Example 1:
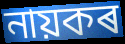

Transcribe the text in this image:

নায়কৰ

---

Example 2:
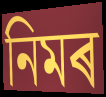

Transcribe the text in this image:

নিমৰ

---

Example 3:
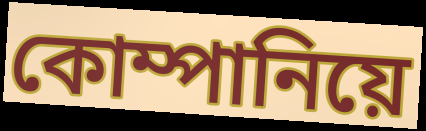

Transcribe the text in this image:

কোম্পানিয়ে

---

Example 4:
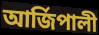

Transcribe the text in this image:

আৰ্জিপালী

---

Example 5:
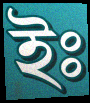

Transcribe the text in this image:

ইঃ